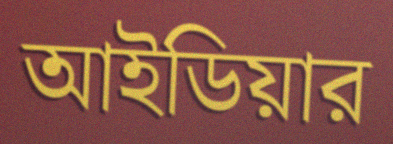
আইডিয়ার